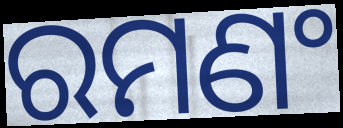
ରମଣଂ